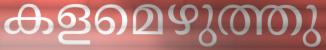
കളമെഴുത്തു